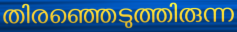
തിരഞ്ഞെടുത്തിരുന്ന